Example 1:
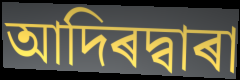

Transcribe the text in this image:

আদিৰদ্বাৰা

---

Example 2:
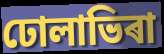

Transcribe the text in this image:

ঢোলাভিৰা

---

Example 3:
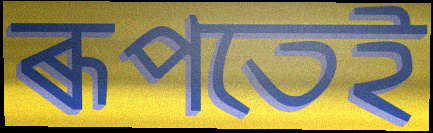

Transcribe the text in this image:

ৰূপতেই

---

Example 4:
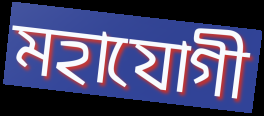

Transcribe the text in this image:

মহাযোগী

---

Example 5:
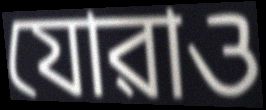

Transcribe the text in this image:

যোৱাও